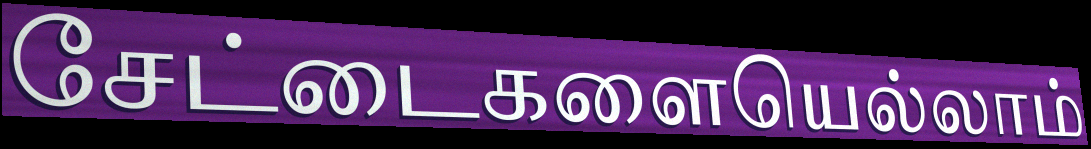
சேட்டைகளையெல்லாம்